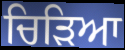
ਚਿੜਿਆ